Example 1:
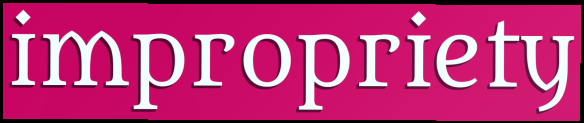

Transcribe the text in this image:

impropriety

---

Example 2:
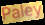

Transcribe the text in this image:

Paley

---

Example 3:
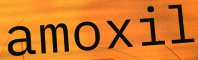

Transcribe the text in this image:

amoxil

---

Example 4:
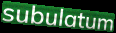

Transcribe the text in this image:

subulatum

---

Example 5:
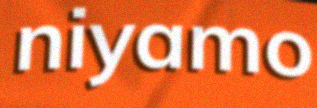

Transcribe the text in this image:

niyamo